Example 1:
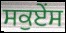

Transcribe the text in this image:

ਸਕੁਏਂਸ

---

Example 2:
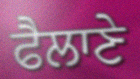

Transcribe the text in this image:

ਫੈਲਾਣੇ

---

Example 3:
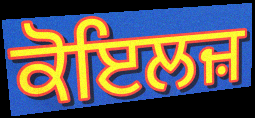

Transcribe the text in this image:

ਕੋਇਲਜ਼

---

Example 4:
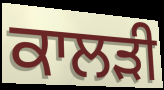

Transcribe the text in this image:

ਕਾਲੜੀ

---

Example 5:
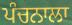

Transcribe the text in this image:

ਪੰਚਨਾਲਾ